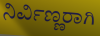
ನಿರ್ವಿಣ್ಣರಾಗಿ